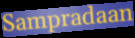
Sampradaan